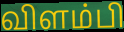
விளம்பி